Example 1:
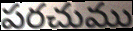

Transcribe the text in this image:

పరచుము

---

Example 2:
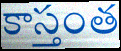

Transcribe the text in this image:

కాస్తంత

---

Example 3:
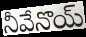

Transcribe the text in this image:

నీవేనొయ్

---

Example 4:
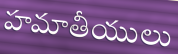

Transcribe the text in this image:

హమాతీయులు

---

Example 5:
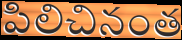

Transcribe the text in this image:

పిలిచినంత